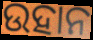
ଉହାନ